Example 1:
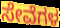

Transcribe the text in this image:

ಸೇವೆಗಳ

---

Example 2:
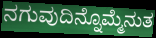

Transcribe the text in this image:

ನಗುವುದಿನ್ನೊಮ್ಮೆನುತ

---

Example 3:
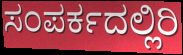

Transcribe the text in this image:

ಸಂಪರ್ಕದಲ್ಲಿರಿ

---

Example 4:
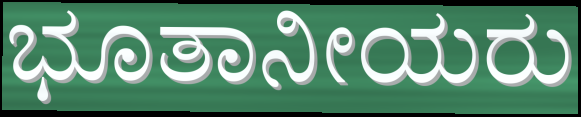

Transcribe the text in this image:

ಭೂತಾನೀಯರು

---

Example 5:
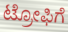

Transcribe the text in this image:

ಟ್ರೋಫಿಗೆ